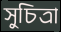
সুচিত্রা